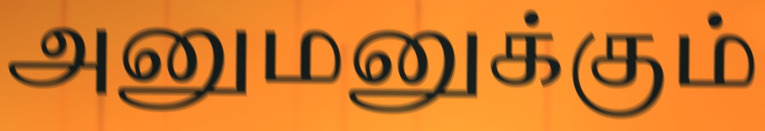
அனுமனுக்கும்